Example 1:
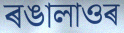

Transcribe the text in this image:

ৰঙালাওৰ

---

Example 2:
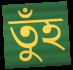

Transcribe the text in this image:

তুঁহ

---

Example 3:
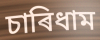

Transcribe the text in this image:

চাৰিধাম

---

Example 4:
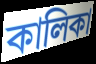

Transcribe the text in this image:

কালিকা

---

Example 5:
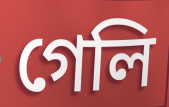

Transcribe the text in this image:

গেলি